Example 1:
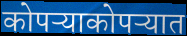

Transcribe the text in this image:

कोपऱ्याकोपऱ्यात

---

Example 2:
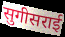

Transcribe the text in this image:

सुगीसराई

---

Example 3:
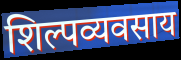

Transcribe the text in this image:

शिल्पव्यवसाय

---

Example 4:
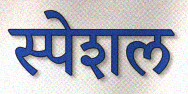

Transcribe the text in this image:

स्पेशल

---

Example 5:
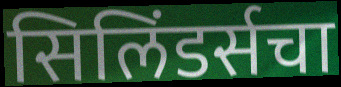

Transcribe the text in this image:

सिलिंडर्सचा